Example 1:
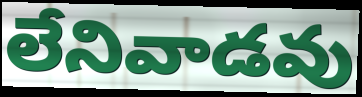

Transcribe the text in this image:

లేనివాడవు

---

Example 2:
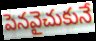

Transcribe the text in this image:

పెనవైచుకునే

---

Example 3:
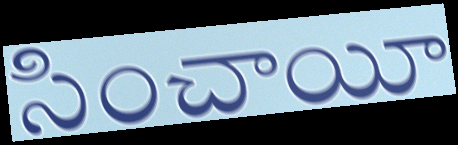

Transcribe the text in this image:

సించాయీ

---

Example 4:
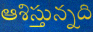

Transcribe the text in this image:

ఆశిస్తున్నది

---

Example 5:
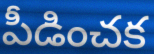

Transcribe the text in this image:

పీడించక